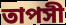
তাপসী